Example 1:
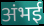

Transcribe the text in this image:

अंभई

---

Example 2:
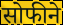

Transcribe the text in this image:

सोफीने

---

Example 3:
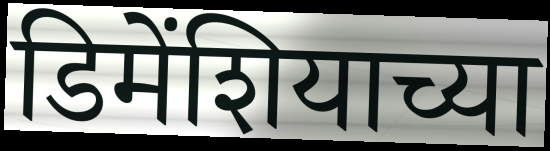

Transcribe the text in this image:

डिमेंशियाच्या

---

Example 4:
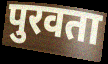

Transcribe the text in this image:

पुरवता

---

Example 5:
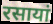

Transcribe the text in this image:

रसायां